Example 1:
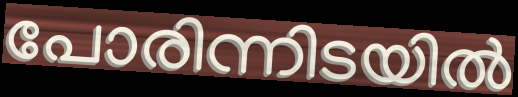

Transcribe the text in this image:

പോരിന്നിടയിൽ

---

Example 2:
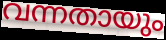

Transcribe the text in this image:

വന്നതായും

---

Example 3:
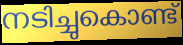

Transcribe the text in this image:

നടിച്ചുകൊണ്ട്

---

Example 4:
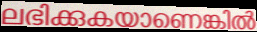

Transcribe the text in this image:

ലഭിക്കുകയാണെങ്കിൽ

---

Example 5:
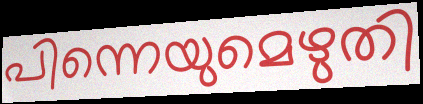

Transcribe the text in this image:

പിന്നെയുമെഴുതി